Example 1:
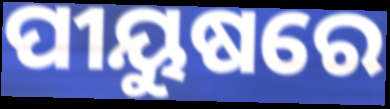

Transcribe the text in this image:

ପୀୟୁଷରେ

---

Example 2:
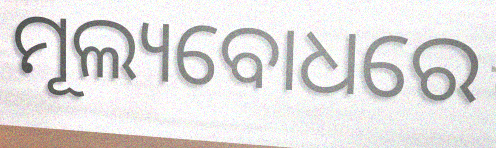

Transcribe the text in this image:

ମୂଲ୍ୟବୋଧରେ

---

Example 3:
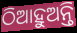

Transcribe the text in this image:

ଠିଆହୁଅନ୍ତି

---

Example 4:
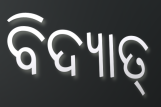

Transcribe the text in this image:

ବିଦ୍ୟାତ୍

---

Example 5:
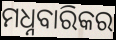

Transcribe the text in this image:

ମଧ୍ନବାରିକର